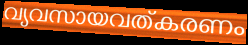
വ്യവസായവത്കരണം